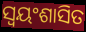
ସ୍ବୟଂଶାସିତ